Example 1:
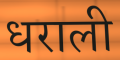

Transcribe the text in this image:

धराली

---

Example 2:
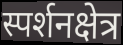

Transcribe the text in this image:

स्पर्शनक्षेत्र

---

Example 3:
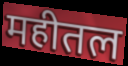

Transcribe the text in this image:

महीतल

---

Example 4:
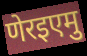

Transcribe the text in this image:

णेरइएमु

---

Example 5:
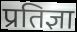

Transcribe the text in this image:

प्रतिज्ञा